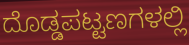
ದೊಡ್ಡಪಟ್ಟಣಗಳಲ್ಲಿ